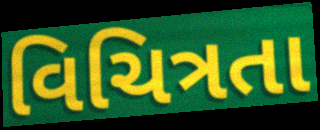
વિચિત્રતા